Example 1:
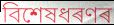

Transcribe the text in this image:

বিশেষধৰণৰ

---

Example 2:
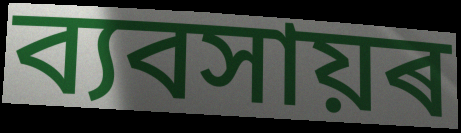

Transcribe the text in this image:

ব্যবসায়ৰ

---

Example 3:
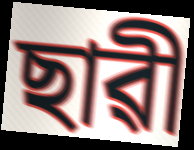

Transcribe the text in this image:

ছাৱী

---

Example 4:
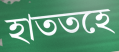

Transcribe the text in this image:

হাততহে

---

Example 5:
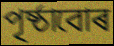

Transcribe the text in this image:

পৃষ্ঠাবোৰ